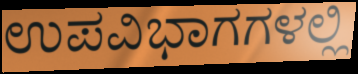
ಉಪವಿಭಾಗಗಳಲ್ಲಿ